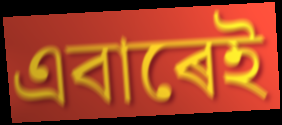
এবাৰেই